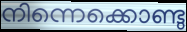
നിന്നെക്കൊണ്ടു